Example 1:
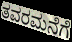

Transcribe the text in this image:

ತವರಮನೆಗೆ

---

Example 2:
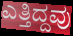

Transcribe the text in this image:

ಎತ್ತಿದ್ದವು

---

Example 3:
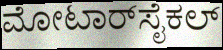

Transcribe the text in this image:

ಮೋಟಾರ್‌ಸೈಕಲ್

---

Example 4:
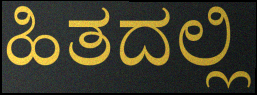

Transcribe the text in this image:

ಹಿತದಲ್ಲಿ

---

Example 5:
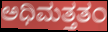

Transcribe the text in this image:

ಅಧಿಮತ್ತತಂ